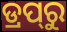
ଡ୍ରପ୍‍ରୁ